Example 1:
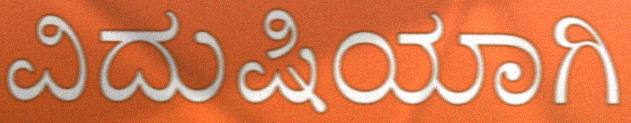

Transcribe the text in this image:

ವಿದುಷಿಯಾಗಿ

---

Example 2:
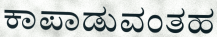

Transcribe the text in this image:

ಕಾಪಾಡುವಂತಹ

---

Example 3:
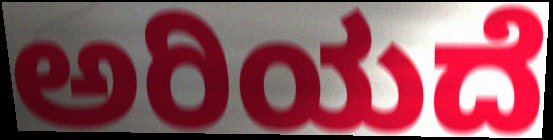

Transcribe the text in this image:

ಅರಿಯದೆ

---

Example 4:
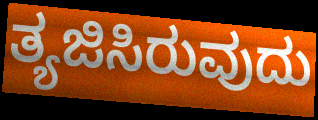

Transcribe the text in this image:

ತ್ಯಜಿಸಿರುವುದು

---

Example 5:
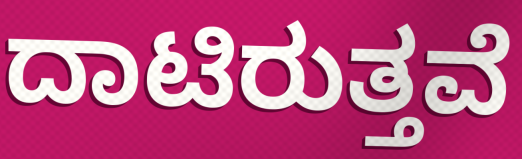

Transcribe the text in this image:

ದಾಟಿರುತ್ತವೆ